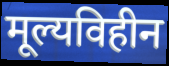
मूल्यविहीन